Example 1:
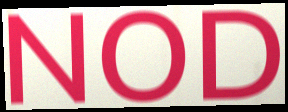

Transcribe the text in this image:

NOD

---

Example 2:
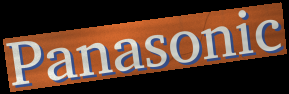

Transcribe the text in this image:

Panasonic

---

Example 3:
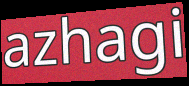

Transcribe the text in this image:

azhagi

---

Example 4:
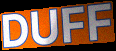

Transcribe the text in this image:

DUFF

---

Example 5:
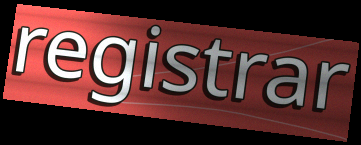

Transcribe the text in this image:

registrar